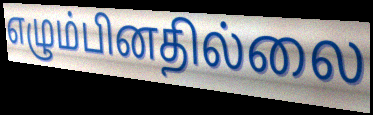
எழும்பினதில்லை